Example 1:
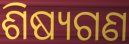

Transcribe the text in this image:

ଶିଷ୍ୟଗଣ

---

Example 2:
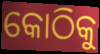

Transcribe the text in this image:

କୋଠିକୁ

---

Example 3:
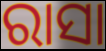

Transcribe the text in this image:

ରାସା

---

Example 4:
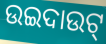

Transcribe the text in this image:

ଉଇଦାଉଟ୍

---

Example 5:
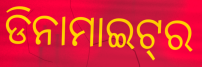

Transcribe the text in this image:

ଡିନାମାଇଟ୍‌ର